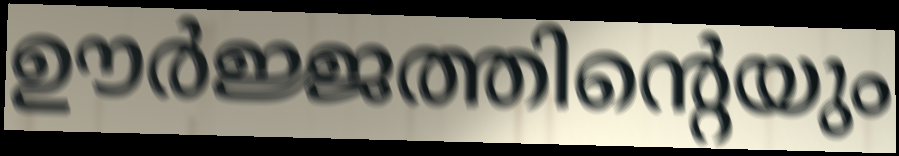
ഊർജ്ജത്തിന്റെയും